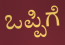
ಒಪ್ಪಿಗೆ